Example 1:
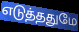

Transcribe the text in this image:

எடுத்ததுமே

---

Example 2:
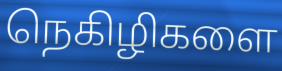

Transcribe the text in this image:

நெகிழிகளை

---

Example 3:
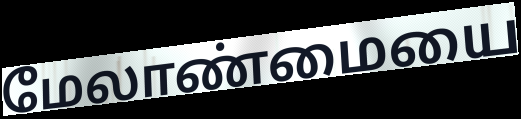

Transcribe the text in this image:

மேலாண்மையை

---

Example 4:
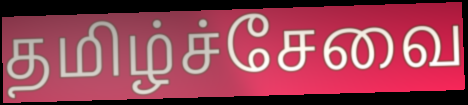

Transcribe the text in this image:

தமிழ்ச்சேவை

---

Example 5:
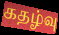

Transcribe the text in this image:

கதழ்வு